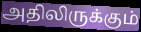
அதிலிருக்கும்